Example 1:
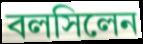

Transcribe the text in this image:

বলসিলেন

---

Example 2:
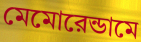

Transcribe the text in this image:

মেমোরেন্ডামে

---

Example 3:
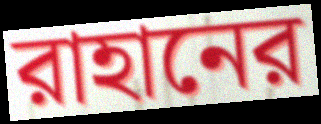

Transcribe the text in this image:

রাহানের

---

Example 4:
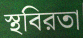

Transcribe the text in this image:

স্থবিরতা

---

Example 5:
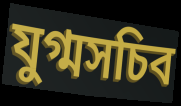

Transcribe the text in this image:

যুগ্মসচিব